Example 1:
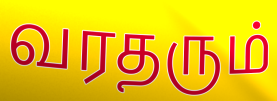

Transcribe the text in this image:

வரதரும்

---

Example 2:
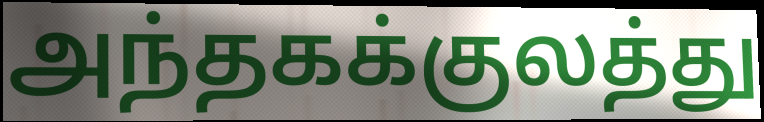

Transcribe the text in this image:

அந்தகக்குலத்து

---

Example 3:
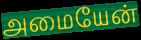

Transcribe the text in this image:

அமையேன்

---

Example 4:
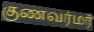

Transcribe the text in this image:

குணவர்மர்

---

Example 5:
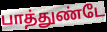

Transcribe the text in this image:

பாத்துண்டே